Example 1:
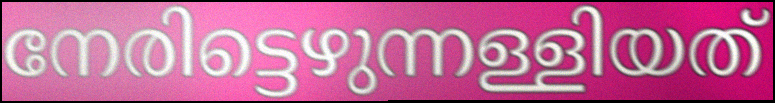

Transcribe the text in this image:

നേരിട്ടെഴുന്നള്ളിയത്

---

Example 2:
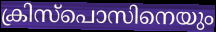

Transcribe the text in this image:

ക്രിസ്പൊസിനെയും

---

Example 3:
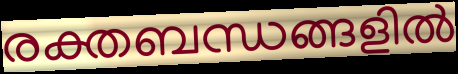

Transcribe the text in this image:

രക്തബന്ധങ്ങളിൽ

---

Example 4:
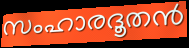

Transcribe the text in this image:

സംഹാരദൂതൻ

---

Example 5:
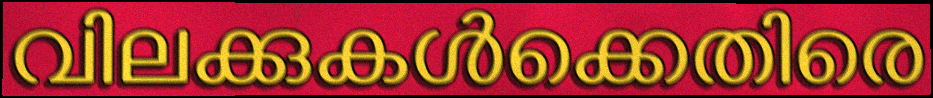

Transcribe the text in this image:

വിലക്കുകൾക്കെതിരെ